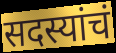
सदस्यांचं